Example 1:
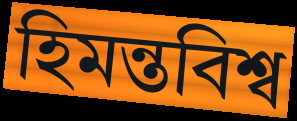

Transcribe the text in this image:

হিমন্তবিশ্ব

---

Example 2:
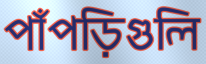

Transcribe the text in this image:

পাঁপড়িগুলি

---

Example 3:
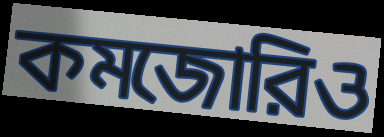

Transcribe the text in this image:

কমজোরিও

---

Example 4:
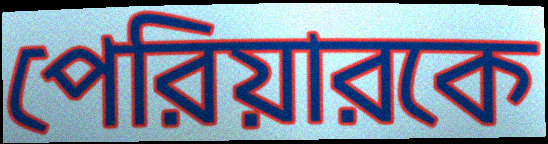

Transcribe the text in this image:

পেরিয়ারকে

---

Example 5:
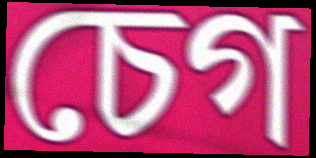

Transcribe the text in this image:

চেগ